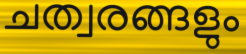
ചത്വരങ്ങളും